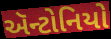
ઍન્ટોનિયો